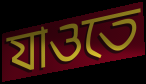
যাওতে